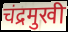
चंद्रमुखी